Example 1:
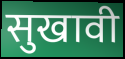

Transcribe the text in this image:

सुखावी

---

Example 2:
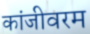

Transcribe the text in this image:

कांजीवरम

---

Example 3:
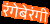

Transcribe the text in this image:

रंगेबेरंगी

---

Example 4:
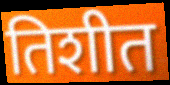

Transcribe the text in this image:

तिशीत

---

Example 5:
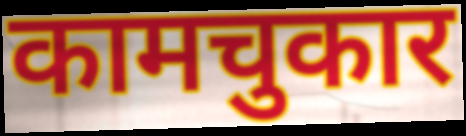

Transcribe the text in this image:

कामचुकार